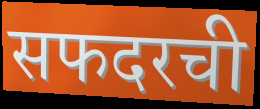
सफदरची